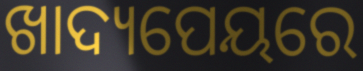
ଖାଦ୍ୟପେୟରେ